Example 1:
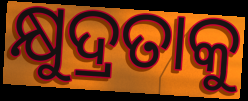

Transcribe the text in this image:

କ୍ଷୁଦ୍ରତାକୁ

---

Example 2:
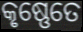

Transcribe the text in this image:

କୃଷ୍ଣେତେ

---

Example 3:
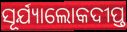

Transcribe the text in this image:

ସୂର୍ଯ୍ୟାଲୋକଦୀପ୍ତ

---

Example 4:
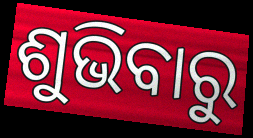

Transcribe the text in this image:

ଶୁଭିବାରୁ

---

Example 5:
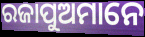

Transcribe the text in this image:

ରଜାପୁଅମାନେ